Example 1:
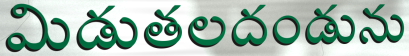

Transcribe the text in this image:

మిడుతలదండును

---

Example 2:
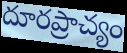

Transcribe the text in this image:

దూరప్రాచ్యం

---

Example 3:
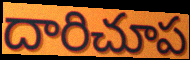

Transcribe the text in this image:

దారిచూప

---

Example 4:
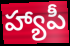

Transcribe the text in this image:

హ్యాపీ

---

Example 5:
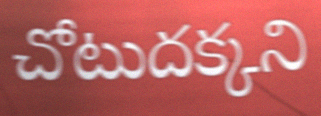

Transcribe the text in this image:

చోటుదక్కని